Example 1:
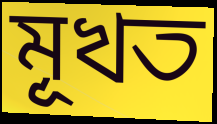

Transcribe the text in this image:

মূখত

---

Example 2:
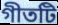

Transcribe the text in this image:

গীতটি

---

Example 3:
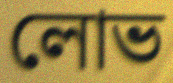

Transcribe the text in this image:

লোভ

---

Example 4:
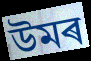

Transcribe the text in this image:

উমৰ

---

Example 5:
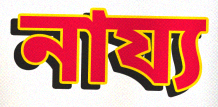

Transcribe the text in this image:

নায্য